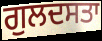
ਗੁਲਦਸਤਾ